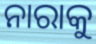
ନାରାକୁ